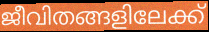
ജീവിതങ്ങളിലേക്ക്